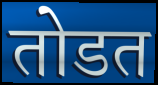
तोडत